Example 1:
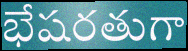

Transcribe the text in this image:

భేషరతుగా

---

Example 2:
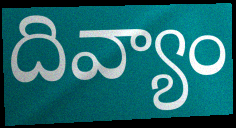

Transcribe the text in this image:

దివ్యాం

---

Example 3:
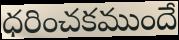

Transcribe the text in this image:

ధరించకముందే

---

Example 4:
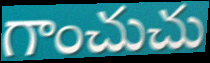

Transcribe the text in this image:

గాంచుచు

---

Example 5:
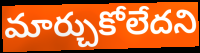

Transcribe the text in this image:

మార్చుకోలేదని